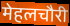
मेहलचौरी